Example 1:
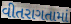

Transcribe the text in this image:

વીતરાગતામાં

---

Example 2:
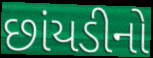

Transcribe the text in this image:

છાંયડીનો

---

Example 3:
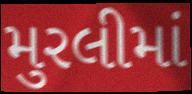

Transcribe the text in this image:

મુરલીમાં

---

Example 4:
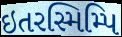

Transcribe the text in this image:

ઇતરસ્મિમ્પિ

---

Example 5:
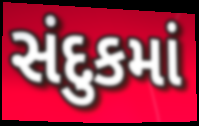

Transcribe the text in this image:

સંદુકમાં